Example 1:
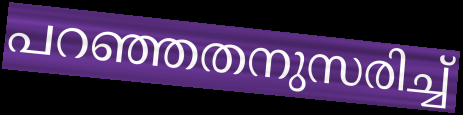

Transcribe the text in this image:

പറഞ്ഞതനുസരിച്ച്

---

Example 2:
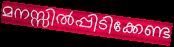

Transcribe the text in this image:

മനസ്സിൽപ്പിടിക്കേണ്ട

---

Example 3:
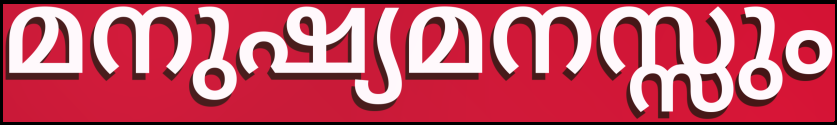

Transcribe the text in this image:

മനുഷ്യമനസ്സും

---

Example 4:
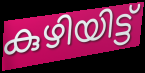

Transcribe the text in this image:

കുഴിയിട്ട്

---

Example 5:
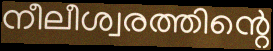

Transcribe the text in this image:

നീലീശ്വരത്തിന്റെ